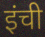
इंची